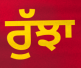
ਰੁੱਝਾ